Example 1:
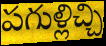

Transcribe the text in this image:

పగుళ్లిచ్చి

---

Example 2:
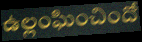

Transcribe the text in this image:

ఉల్లంఘించిందో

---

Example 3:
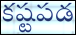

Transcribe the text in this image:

కష్టపడ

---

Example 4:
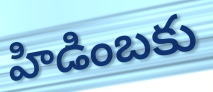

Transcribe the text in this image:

హిడింబకు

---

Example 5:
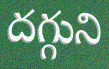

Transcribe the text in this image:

దగ్గుని